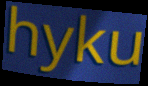
hyku